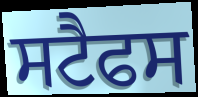
ਸਟੈਫਸ